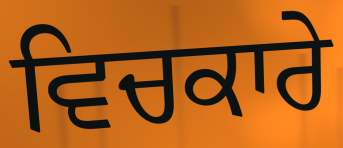
ਵਿਚਕਾਰੇ